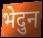
भेदुन